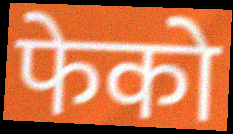
फेको